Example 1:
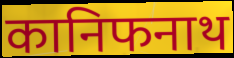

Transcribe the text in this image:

कानिफनाथ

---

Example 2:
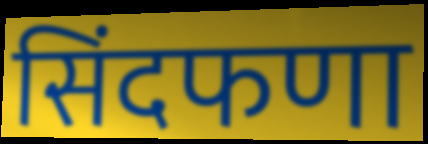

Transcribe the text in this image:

सिंदफणा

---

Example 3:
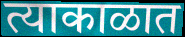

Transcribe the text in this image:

त्याकाळात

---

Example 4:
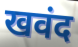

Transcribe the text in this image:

खवंद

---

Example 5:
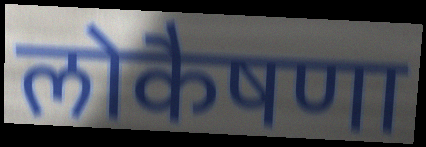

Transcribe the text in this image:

लोकैषणा